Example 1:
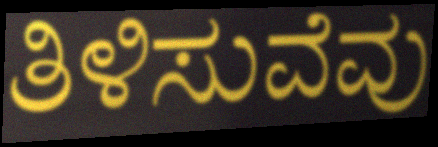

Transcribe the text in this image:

ತಿಳಿಸುವೆವು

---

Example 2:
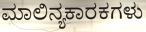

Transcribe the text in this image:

ಮಾಲಿನ್ಯಕಾರಕಗಳು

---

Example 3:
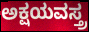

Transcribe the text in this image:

ಅಕ್ಷಯವಸ್ತ್ರ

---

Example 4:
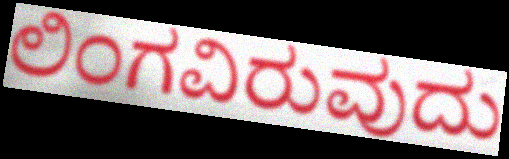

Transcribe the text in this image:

ಲಿಂಗವಿರುವುದು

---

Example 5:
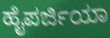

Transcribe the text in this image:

ಹೈಪರ್ಜಿಯಾ